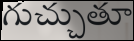
గుచ్చుతూ